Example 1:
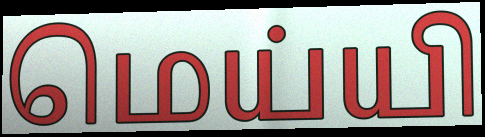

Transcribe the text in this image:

மெய்யி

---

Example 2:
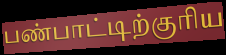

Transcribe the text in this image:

பண்பாட்டிற்குரிய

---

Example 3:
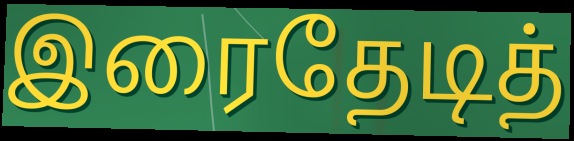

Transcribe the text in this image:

இரைதேடித்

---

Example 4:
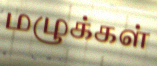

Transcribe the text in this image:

மழுக்கள்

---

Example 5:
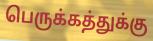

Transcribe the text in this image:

பெருக்கத்துக்கு